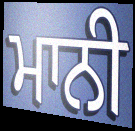
ਮਾਨੀ